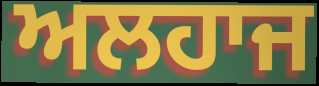
ਅਲਹਾਜ